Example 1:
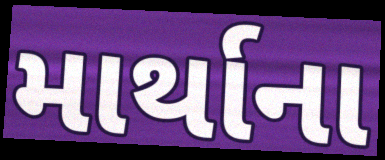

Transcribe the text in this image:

માર્થાના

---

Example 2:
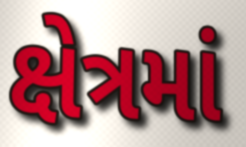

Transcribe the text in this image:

ક્ષેત્રમાં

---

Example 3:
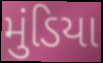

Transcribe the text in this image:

મુંડિયા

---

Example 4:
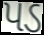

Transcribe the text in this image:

પડ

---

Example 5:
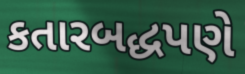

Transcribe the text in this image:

કતારબદ્ધપણે